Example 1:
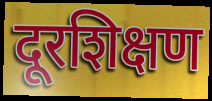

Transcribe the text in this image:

दूरशिक्षण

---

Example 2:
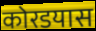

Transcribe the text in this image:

कोरडयास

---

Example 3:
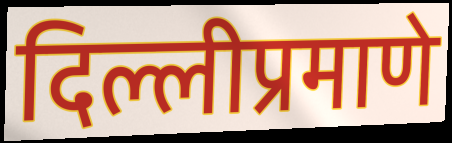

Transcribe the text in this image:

दिल्लीप्रमाणे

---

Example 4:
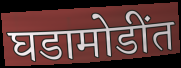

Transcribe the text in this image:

घडामोडींत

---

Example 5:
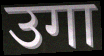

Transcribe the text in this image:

उगा